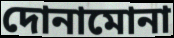
দোনামোনা